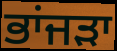
ਭਾਂਜੜਾ